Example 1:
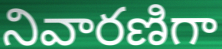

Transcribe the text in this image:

నివారణిగా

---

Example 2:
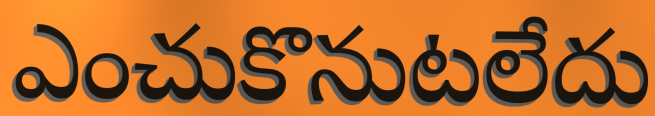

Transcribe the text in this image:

ఎంచుకొనుటలేదు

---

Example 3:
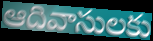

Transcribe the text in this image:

ఆదివాసులకు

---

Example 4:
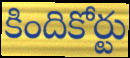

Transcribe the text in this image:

కిందికోర్టు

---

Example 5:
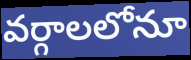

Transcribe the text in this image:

వర్గాలలోనూ